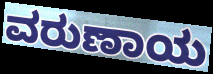
ವರುಣಾಯ